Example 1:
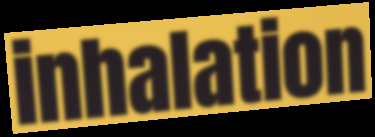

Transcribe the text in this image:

inhalation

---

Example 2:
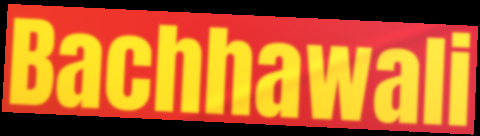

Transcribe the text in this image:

Bachhawali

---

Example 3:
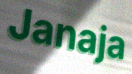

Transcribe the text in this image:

Janaja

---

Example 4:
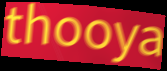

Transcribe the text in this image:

thooya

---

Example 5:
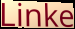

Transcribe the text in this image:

Linke